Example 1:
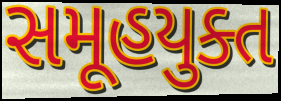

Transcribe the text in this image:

સમૂહયુક્ત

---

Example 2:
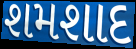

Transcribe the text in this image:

શમશાદ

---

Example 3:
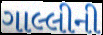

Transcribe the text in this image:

ગાલ્લીની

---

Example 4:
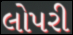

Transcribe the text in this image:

લોપરી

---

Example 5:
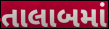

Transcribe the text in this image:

તાલાબમાં